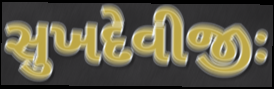
સુખદેવીજીઃ